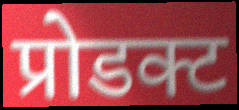
प्रोडक्ट